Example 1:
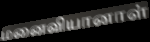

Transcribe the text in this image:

மனைவியானாள்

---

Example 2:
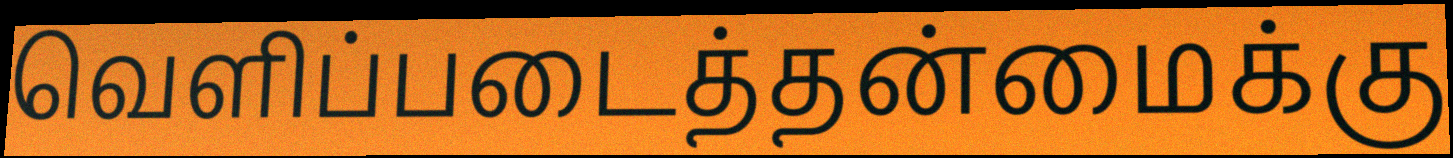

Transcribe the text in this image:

வெளிப்படைத்தன்மைக்கு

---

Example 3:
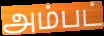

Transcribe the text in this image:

அம்பட்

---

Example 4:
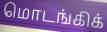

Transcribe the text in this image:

மொடங்கிக்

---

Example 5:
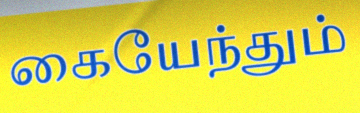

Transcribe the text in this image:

கையேந்தும்